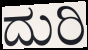
ದುರಿ